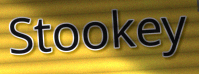
Stookey